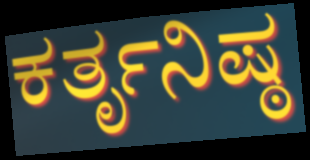
ಕರ್ತೃನಿಷ್ಠ